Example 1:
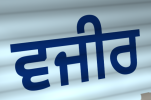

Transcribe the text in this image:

ਵਜੀਰ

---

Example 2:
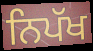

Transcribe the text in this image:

ਨਿਪੱਖ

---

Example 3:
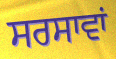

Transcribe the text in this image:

ਸਰਸਾਵਾਂ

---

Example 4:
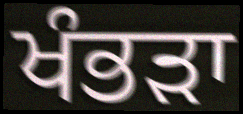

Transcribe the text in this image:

ਖੰਭੜਾ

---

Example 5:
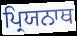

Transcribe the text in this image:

ਪ੍ਰਿਯਨਾਥ